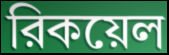
রিকয়েল